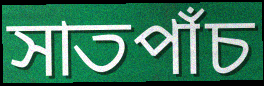
সাতপাঁচ